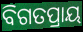
ବିଗତପ୍ରାୟ